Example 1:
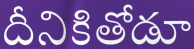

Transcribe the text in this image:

దీనికితోడూ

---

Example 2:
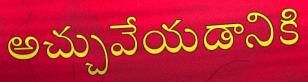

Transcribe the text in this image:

అచ్చువేయడానికి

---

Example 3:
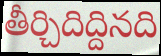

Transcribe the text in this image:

తీర్చిదిద్దినది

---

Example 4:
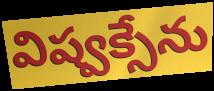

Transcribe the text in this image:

విష్వక్సేను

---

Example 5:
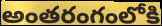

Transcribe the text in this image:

అంతరంగంలోకి